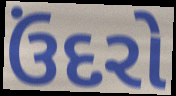
ઉંદરો